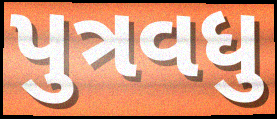
પુત્રવધુ